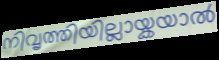
നിവൃത്തിയില്ലായ്കയാൽ